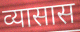
व्यासास